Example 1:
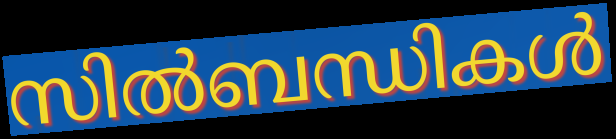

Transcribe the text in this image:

സിൽബന്ധികൾ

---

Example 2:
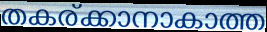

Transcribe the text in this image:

തകര്ക്കാനാകാത്ത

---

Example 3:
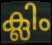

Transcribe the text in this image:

ക്ലിം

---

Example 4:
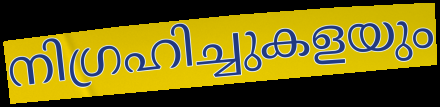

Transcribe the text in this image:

നിഗ്രഹിച്ചുകളയും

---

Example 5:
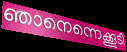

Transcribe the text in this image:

ഞാനെന്നെക്കൂടി